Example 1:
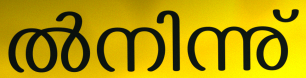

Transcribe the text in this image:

ൽനിന്നു്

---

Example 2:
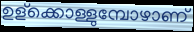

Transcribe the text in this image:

ഉള്ക്കൊള്ളുമ്പോഴാണ്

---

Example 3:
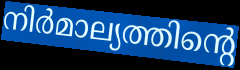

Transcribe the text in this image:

നിർമാല്യത്തിന്റെ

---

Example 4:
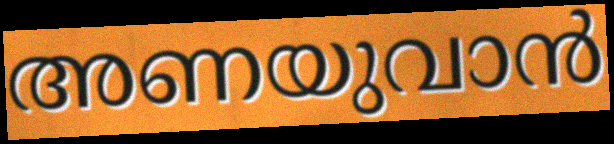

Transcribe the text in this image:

അണയുവാൻ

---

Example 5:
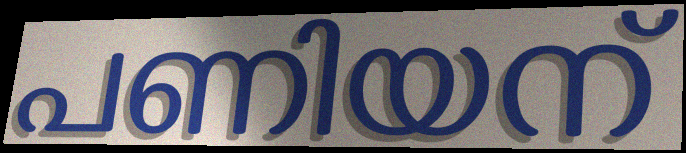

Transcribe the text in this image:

പണിയന്